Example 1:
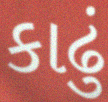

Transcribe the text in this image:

કાઢું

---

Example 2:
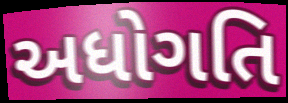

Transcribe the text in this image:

અધોગતિ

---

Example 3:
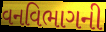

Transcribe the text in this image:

વનવિભાગની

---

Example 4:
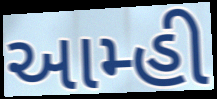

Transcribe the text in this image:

આમ્હી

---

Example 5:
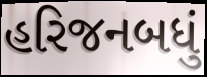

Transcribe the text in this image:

હરિજનબધું